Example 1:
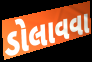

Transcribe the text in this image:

ડોલાવવા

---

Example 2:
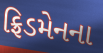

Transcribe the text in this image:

ફ્રિડમેનના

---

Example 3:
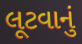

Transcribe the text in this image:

લૂટવાનું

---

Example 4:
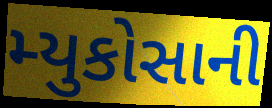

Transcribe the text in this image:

મ્યુકોસાની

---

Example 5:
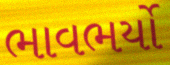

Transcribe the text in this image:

ભાવભર્યો